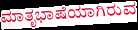
ಮಾತೃಭಾಷೆಯಾಗಿರುವ